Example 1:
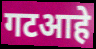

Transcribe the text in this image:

गटआहे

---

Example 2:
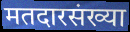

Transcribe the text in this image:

मतदारसंख्या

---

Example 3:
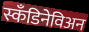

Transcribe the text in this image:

स्कॅंडिनेविअन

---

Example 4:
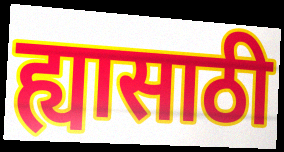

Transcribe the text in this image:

ह्यासाठी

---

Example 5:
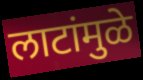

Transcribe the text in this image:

लाटांमुळे